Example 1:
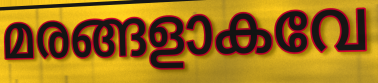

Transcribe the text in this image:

മരങ്ങളാകവേ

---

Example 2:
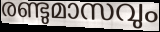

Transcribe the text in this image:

രണ്ടുമാസവും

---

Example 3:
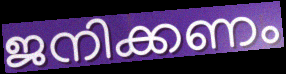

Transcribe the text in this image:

ജനിക്കണം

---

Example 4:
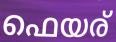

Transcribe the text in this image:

ഫെയര്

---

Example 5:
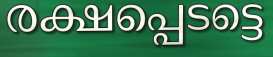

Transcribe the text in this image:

രക്ഷപ്പെടട്ടെ